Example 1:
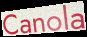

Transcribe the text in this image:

Canola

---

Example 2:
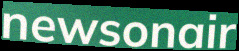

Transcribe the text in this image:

newsonair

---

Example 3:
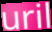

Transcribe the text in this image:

uril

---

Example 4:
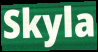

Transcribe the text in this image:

Skyla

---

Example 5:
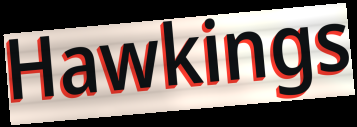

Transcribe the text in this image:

Hawkings